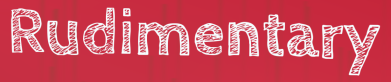
Rudimentary